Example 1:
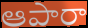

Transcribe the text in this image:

ఆపారా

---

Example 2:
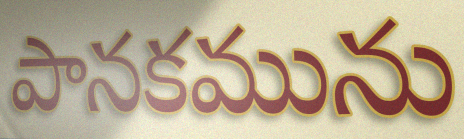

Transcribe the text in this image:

పానకమును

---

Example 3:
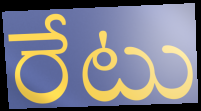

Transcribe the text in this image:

రేటు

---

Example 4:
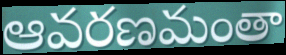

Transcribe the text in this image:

ఆవరణమంతా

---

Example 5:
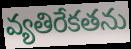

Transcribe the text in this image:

వ్యతిరేకతను